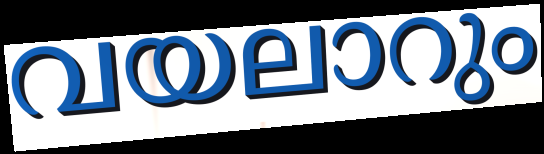
വയലാറും